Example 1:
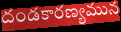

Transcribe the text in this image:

దండకారణ్యమున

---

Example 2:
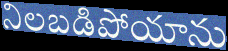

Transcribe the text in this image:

నిలబడిపోయాను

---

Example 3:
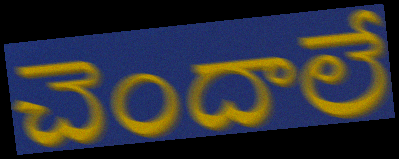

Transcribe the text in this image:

చెందాలే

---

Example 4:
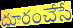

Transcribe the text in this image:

దూరంచేసే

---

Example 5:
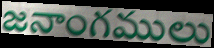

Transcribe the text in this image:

జనాంగములు